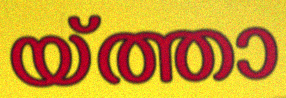
യ്ത്താ